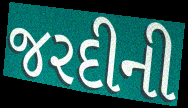
જરદીની